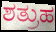
ಶತ್ರುಹ